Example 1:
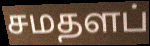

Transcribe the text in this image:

சமதளப்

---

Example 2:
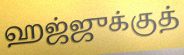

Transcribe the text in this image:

ஹஜ்ஜுக்குத்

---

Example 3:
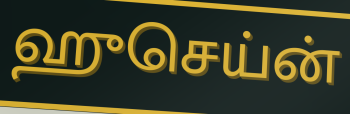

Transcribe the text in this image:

ஹுசெய்ன்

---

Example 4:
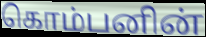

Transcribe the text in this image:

கொம்பனின்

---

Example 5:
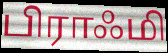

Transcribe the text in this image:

பிராஃமி